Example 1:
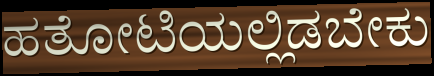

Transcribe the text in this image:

ಹತೋಟಿಯಲ್ಲಿಡಬೇಕು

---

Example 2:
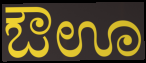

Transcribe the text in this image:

ಔಊ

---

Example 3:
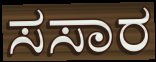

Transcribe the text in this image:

ಸಸಾರ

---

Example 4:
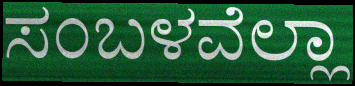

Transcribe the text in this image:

ಸಂಬಳವೆಲ್ಲಾ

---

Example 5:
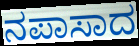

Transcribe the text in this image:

ನಪಾಸಾದ